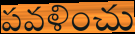
పవళించు